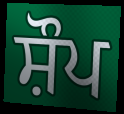
ਸ਼ੌਪ